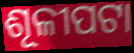
ଶୂଳୀପଟା